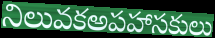
నిలువకఅపహాసకులు